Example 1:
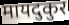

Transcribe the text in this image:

मायदुकुर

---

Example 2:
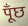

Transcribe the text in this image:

पूँछ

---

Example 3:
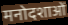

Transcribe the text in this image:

मनोदशाओं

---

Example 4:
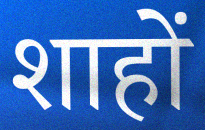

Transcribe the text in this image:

शाहों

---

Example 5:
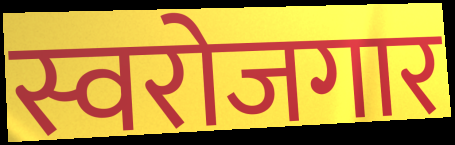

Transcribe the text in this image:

स्‍वरोजगार